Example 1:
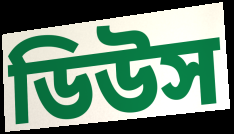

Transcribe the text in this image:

ডিউস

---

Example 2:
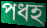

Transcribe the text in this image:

পধহ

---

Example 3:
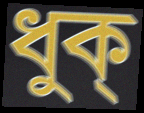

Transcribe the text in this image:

ধুক্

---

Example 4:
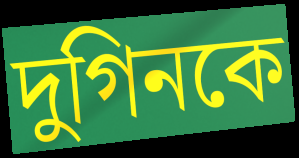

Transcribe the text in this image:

দুগিনকে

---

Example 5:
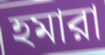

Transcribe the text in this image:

হমারা